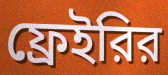
ফ্রেইরির